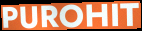
PUROHIT